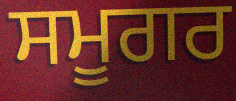
ਸਮੂਗਰ